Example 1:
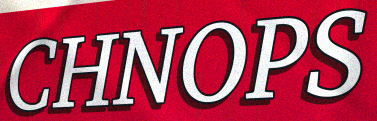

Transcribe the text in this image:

CHNOPS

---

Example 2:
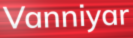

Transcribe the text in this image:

Vanniyar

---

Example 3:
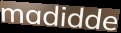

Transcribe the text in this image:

madidde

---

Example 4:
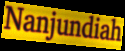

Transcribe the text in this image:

Nanjundiah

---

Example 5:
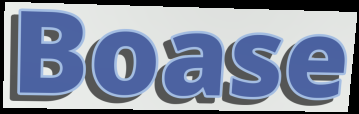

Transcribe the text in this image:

Boase